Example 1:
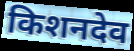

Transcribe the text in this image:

किशनदेव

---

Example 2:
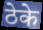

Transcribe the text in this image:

ठेके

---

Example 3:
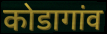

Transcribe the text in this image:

कोडागांव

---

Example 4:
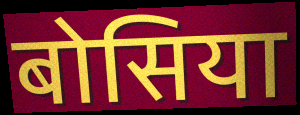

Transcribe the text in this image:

बोसिया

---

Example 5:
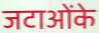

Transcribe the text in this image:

जटाओंके